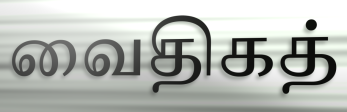
வைதிகத்